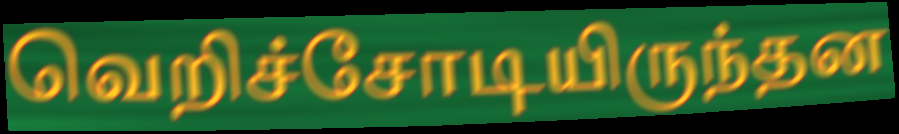
வெறிச்சோடியிருந்தன